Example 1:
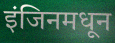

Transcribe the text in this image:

इंजिनमधून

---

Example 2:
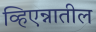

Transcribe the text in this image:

व्हिएन्नातील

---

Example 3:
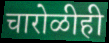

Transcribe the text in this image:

चारोळीही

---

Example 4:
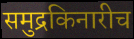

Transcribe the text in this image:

समुद्रकिनारीच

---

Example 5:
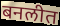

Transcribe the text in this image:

बनलीत